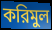
করিমুল